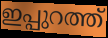
ഇപ്പുറത്ത്